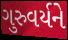
ગુરુવર્યને